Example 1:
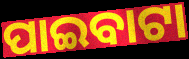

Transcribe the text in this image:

ପାଇବାଟା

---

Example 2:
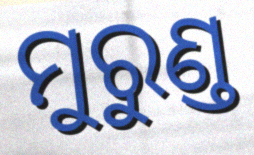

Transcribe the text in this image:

ମୁରୁଣ୍ଡ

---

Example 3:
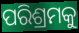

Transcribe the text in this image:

ପରିଶ୍ରମକୁ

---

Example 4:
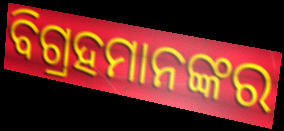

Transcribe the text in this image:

ବିଗ୍ରହମାନଙ୍କର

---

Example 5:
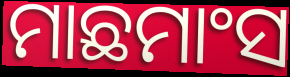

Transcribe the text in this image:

ମାଛମାଂସ